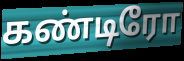
கண்டிரோ